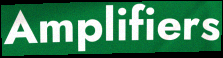
Amplifiers